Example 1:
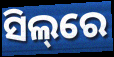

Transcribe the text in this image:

ସିଲ୍‌ରେ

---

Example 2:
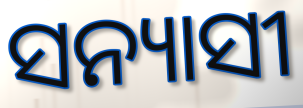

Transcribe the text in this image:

ସନ୍ୟାସୀ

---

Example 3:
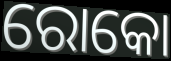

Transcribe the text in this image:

ରୋକୋ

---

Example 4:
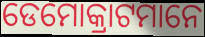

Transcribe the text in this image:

ଡେମୋକ୍ରାଟମାନେ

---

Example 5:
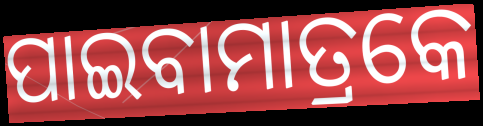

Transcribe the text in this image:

ପାଇବାମାତ୍ରକେ